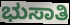
ಭುಸಾತಿ